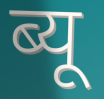
ब्यू